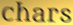
chars